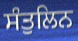
ਸੰਤੁਲਿਨ